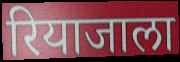
रियाजाला